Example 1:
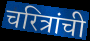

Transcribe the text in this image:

चरित्रांची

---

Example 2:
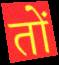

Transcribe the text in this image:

तों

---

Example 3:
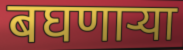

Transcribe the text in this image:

बघणाऱ्या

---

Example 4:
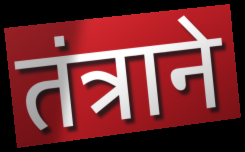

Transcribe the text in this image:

तंत्राने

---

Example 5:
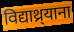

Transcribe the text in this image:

विद्याथ्र्याना